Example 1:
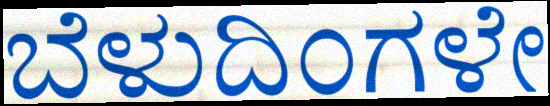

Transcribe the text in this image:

ಬೆಳುದಿಂಗಳೇ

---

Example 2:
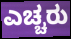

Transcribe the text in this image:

ಎಚ್ಚರು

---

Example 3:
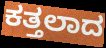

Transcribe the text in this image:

ಕತ್ತಲಾದ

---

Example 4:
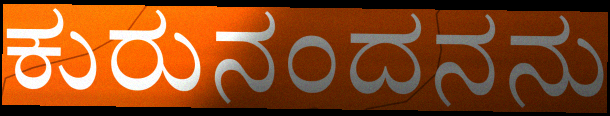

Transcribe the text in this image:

ಕುರುನಂದನನು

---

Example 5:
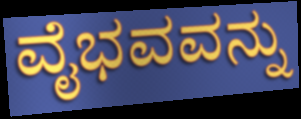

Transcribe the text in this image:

ವೈಭವವನ್ನು